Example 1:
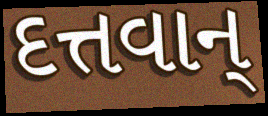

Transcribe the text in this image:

દત્તવાન્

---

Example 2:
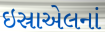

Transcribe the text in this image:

ઇસ્રાએલનાં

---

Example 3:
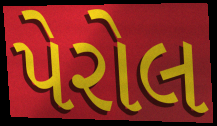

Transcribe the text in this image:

પેરોલ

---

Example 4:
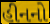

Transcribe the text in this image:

હીનનો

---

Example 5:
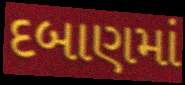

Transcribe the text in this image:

દબાણમાં